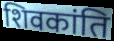
शिवकांति